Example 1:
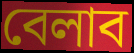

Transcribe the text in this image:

বেলাব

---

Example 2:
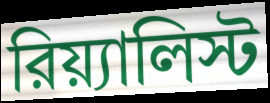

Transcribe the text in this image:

রিয়্যালিস্ট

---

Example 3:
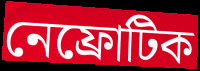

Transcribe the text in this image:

নেফ্রোটিক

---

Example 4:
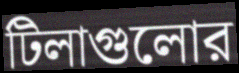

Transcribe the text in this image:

টিলাগুলোর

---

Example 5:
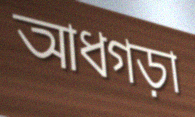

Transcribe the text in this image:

আধগড়া